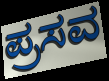
ಪ್ರಸವ